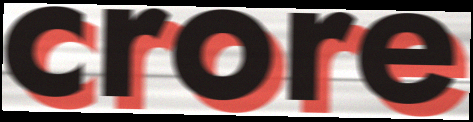
crore